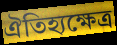
ঐতিহ্যক্ষেত্ৰ